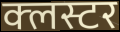
क्‍लस्‍टर